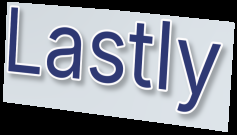
Lastly